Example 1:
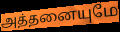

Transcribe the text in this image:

அத்தனையுமே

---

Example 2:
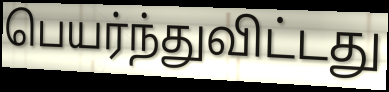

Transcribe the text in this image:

பெயர்ந்துவிட்டது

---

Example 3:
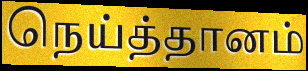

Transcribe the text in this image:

நெய்த்தானம்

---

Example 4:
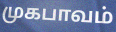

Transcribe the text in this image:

முகபாவம்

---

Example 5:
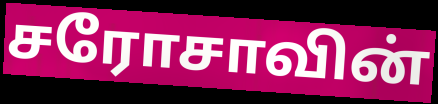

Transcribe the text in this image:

சரோசாவின்